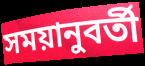
সময়ানুবর্তী